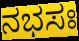
ನಭಸಃ